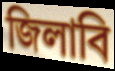
জিলাবি